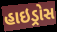
હાઇડ્રોસ